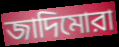
জাদিমোরা